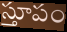
స్తూపం